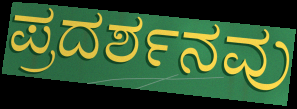
ಪ್ರದರ್ಶನವು